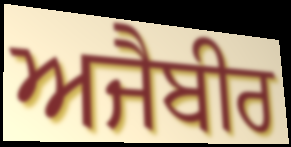
ਅਜੈਬੀਰ